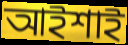
আইশাই